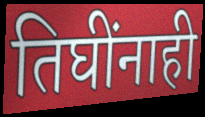
तिघींनाही